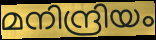
മനിന്ദ്രിയം